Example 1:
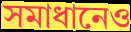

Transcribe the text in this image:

সমাধানেও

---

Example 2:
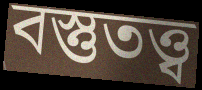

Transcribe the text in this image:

বস্তুতত্ত্ব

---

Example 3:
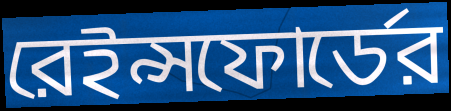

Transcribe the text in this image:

রেইন্সফোর্ডের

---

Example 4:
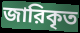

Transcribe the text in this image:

জারিকৃত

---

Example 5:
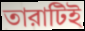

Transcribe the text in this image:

তারাটিই